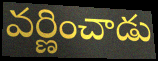
వర్ణించాడు